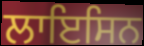
ਲਾਇਸਿਨ